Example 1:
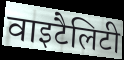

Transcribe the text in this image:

वाइटैलिटी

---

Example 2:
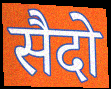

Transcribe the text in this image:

सैदो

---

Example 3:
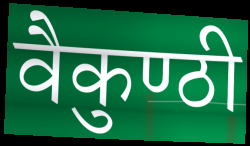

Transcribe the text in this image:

वैकुण्ठी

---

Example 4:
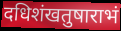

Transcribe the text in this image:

दधिशंखतुषाराभं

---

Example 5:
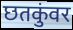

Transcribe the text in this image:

छतकुंवर